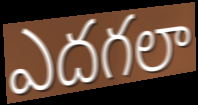
ఎదగలా